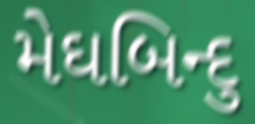
મેઘબિન્દુ